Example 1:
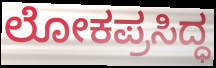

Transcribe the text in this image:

ಲೋಕಪ್ರಸಿದ್ಧ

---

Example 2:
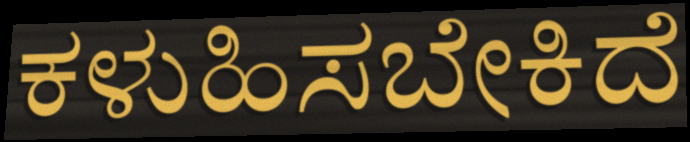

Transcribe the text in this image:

ಕಳುಹಿಸಬೇಕಿದೆ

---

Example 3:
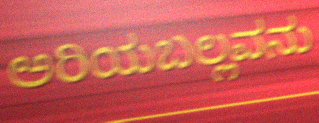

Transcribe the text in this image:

ಅರಿಯಬಲ್ಲವನು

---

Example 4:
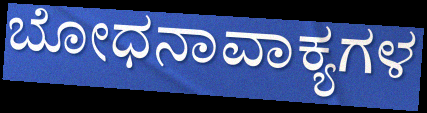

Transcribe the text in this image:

ಬೋಧನಾವಾಕ್ಯಗಳ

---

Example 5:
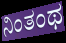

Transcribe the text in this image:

ನಿಂತಂಥ